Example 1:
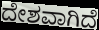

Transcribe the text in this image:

ದೇಶವಾಗಿದೆ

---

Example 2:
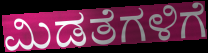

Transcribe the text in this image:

ಮಿಡತೆಗಳಿಗೆ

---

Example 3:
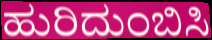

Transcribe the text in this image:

ಹುರಿದುಂಬಿಸಿ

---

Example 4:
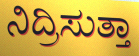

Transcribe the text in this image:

ನಿದ್ರಿಸುತ್ತಾ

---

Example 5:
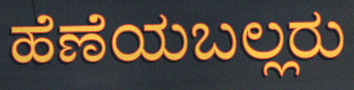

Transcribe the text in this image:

ಹೆಣೆಯಬಲ್ಲರು